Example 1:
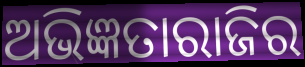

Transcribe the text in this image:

ଅଭିଜ୍ଞତାରାଜିର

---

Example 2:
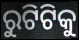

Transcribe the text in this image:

ରୁଟିଟିକୁ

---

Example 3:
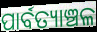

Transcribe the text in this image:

ପାର୍ବତ୍ୟାଞ୍ଚଳ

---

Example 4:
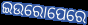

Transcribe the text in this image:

ଇଉରୋପେରେ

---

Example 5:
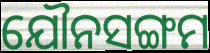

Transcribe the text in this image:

ଯୌନସଙ୍ଗମ